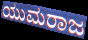
ಯುಮರಾಜ